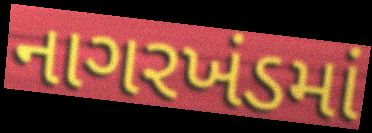
નાગરખંડમાં